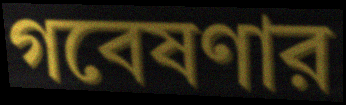
গবেষণার